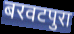
बरवटपुरा